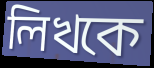
লিখকে